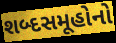
શબ્દસમૂહોનો